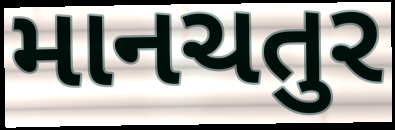
માનચતુર